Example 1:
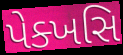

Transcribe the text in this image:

પેક્ખસિ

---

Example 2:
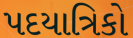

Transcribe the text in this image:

પદયાત્રિકો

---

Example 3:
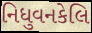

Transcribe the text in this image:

નિધુવનકેલિ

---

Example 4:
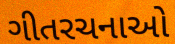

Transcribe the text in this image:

ગીતરચનાઓ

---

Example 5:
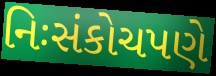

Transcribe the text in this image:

નિઃસંકોચપણે